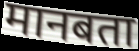
मानबता